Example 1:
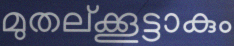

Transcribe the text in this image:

മുതല്ക്കൂട്ടാകും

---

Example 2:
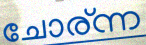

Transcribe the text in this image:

ചോര്ന്ന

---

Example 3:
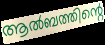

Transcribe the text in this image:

ആൽബത്തിന്റെ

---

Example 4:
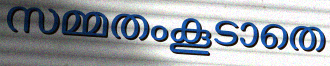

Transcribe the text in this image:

സമ്മതംകൂടാതെ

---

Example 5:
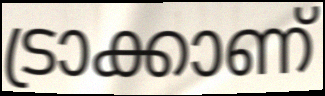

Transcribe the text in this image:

ട്രാക്കാണ്